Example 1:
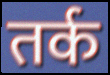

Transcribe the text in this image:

तर्क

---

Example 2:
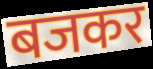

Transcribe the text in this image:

बजकर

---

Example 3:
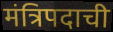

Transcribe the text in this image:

मंत्रिपदाची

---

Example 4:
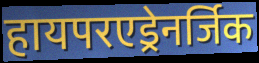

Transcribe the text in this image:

हायपरएड्रेनर्जिक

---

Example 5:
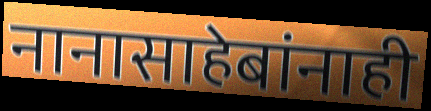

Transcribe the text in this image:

नानासाहेबांनाही